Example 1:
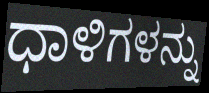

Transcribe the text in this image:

ಧಾಳಿಗಳನ್ನು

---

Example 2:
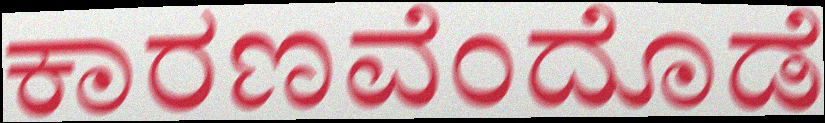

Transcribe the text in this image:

ಕಾರಣವೆಂದೊಡೆ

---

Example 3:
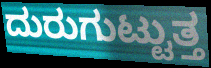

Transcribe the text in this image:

ದುರುಗುಟ್ಟುತ್ತ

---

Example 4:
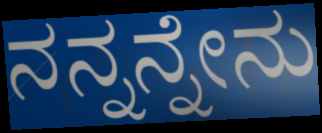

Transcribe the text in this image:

ನನ್ನನ್ನೇನು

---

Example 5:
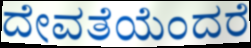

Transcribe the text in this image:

ದೇವತೆಯೆಂದರೆ